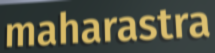
maharastra